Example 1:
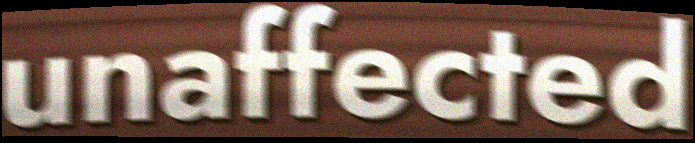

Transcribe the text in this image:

unaffected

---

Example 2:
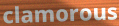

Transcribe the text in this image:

clamorous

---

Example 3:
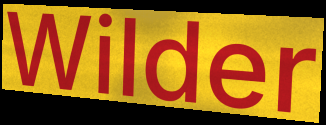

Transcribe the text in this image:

Wilder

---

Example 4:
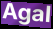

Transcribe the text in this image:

Agal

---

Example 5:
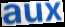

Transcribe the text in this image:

aux